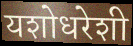
यशोधरेशी